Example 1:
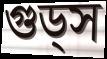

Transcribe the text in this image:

গুড্স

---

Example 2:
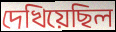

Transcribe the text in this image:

দেখিয়েছিল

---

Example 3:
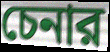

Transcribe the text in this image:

চেনার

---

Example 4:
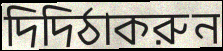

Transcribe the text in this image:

দিদিঠাকরুন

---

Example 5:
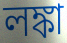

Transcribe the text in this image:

লঙ্কা